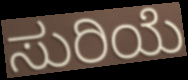
ಸುರಿಯೆ